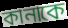
কানাকে